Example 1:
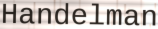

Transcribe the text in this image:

Handelman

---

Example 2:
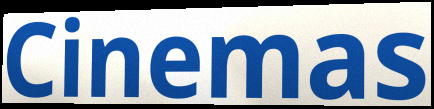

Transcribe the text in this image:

Cinemas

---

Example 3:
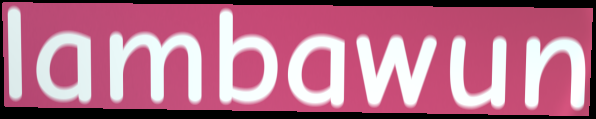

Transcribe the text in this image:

lambawun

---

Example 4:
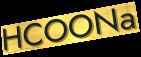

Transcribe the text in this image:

HCOONa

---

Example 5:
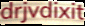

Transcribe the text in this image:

drjvdixit